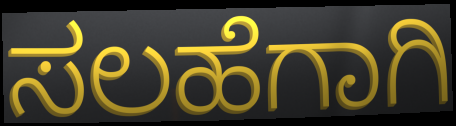
ಸಲಹೆಗಾಗಿ